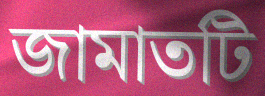
জামাতটি